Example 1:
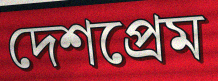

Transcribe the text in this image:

দেশপ্রেম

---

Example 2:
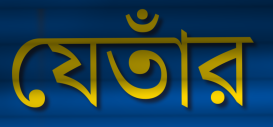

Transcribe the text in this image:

যেতাঁর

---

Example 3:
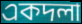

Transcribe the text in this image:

একদলা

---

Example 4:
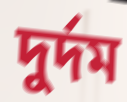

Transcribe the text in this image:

দুর্দম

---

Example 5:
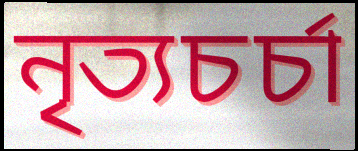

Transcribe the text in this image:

নৃত্যচর্চা